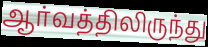
ஆர்வத்திலிருந்து